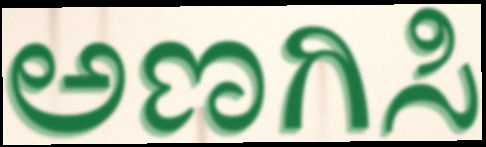
ಅಣಗಿಸಿ